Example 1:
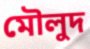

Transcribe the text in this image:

মৌলুদ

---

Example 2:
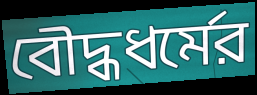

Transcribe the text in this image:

বৌদ্ধধর্মের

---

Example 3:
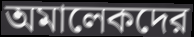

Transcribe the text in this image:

অমালেকদের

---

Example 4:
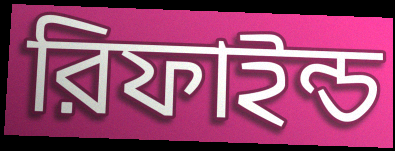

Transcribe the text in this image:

রিফাইন্ড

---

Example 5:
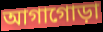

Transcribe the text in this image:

আগাগোড়া